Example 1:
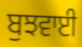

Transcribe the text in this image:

ਬੁਝਵਾਈ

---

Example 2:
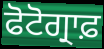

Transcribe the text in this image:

ਫੋਟੋਗ੍ਰਾਫ਼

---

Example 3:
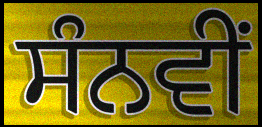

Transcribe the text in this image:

ਸੰਨਵੀਂ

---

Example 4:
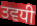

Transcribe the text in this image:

ਤਵਧੀ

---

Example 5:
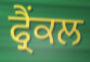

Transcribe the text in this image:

ਫ੍ਰੈਂਕਲ